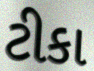
ટીકા